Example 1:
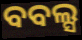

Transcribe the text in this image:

ବବଲ୍ସ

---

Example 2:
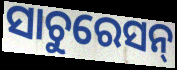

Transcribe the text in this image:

ସାଚୁରେସନ୍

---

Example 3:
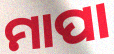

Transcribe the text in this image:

ମାପା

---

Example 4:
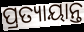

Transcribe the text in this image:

ପ୍ରତ୍ୟାୟାନ୍ତ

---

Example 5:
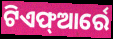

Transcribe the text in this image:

ଟିଏଫ୍ଆର୍ରେ